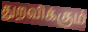
துறவிக்கும்